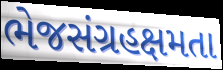
ભેજસંગ્રહક્ષમતા